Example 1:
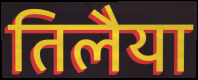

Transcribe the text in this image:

तिलैया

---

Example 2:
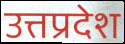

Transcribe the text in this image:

उत्तप्रदेश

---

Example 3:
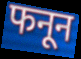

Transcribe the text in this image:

फनून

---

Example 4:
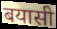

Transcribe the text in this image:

बयासी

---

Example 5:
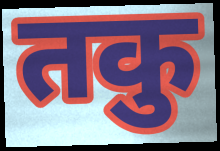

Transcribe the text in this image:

तकु